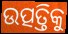
ଉତ୍ପତ୍ତିକୁ